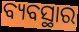
ବ୍ୟବସ୍ଥାର